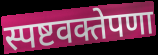
स्पष्टवक्तेपणा